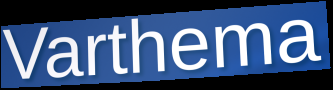
Varthema